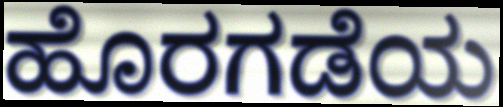
ಹೊರಗಡೆಯ